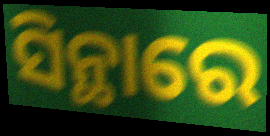
ସିନ୍ଥାରେ